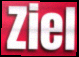
Ziel